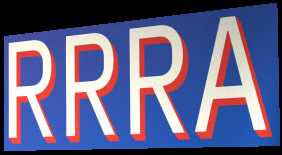
RRRA